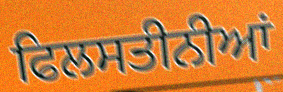
ਫਿਲਸਤੀਨੀਆਂ